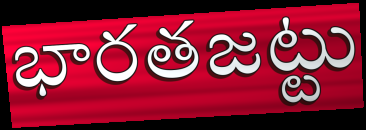
భారతజట్టు